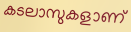
കടലാസുകളാണ്